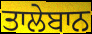
ਤਾਲੇਬਾਨ